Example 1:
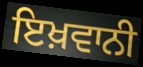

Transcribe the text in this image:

ਇਖ਼ਵਾਨੀ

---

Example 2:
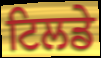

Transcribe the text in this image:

ਟਿਲਡੇ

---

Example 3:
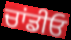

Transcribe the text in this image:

ਚਾਂਡੀਓ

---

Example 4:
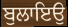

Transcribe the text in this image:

ਬੁਲਾਇਉ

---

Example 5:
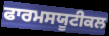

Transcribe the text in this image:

ਫਾਰਮਸਯੂਟੀਕਲ